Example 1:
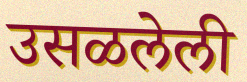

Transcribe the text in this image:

उसळलेली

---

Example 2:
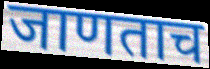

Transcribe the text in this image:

जाणताच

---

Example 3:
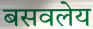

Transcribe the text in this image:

बसवलेय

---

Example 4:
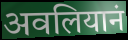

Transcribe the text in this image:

अवलियानं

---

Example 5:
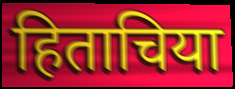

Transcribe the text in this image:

हिताचिया